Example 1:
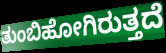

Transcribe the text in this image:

ತುಂಬಿಹೋಗಿರುತ್ತದೆ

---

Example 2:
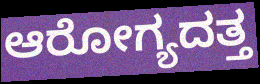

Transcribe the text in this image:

ಆರೋಗ್ಯದತ್ತ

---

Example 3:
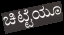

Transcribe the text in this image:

ಚಿಟ್ಟೆಯೂ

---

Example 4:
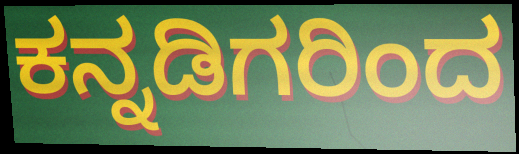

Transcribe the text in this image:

ಕನ್ನಡಿಗರಿಂದ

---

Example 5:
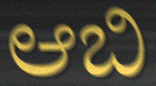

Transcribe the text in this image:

ಆಬಿ